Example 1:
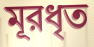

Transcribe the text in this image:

মূরধৃত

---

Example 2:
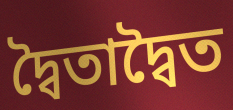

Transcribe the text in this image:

দ্বৈতাদ্বৈত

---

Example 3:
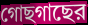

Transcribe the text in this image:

গোছগাছের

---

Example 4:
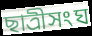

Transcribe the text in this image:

ছাত্রীসংঘ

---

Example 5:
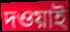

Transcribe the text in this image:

দওয়াই